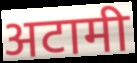
अटामी